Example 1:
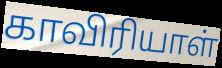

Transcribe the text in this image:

காவிரியாள்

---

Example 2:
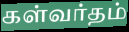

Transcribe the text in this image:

கள்வர்தம்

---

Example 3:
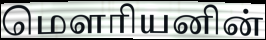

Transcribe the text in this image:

மௌரியனின்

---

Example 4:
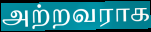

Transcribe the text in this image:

அற்றவராக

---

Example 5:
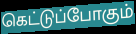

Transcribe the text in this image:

கெட்டுப்போகும்